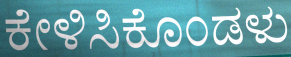
ಕೇಳಿಸಿಕೊಂಡಳು